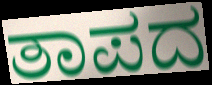
ತಾಪದ